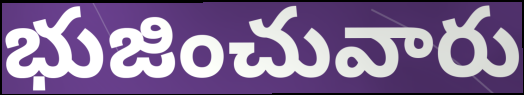
భుజించువారు